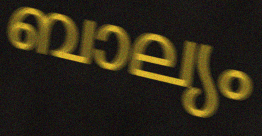
ബാല്യം